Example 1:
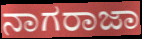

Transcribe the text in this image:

ನಾಗರಾಜಾ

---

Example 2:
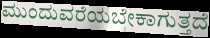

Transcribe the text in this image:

ಮುಂದುವರೆಯಬೇಕಾಗುತ್ತದೆ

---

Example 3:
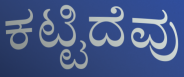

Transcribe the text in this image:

ಕಟ್ಟಿದೆವು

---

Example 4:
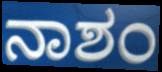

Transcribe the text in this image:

ನಾಶಂ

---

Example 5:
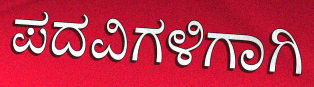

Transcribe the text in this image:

ಪದವಿಗಳಿಗಾಗಿ